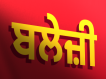
ਬਲੇਜ਼ੀ